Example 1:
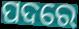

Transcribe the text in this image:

ପଦରେ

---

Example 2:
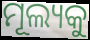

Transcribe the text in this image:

ମୂଲ୍ୟକୁ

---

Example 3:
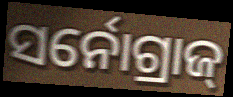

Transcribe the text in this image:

ସର୍ନୋଗ୍ରାଜ୍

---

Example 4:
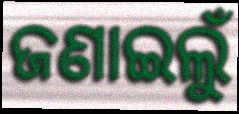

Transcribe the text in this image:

ଜଣାଇଲୁଁ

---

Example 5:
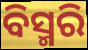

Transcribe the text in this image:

ବିସ୍ମରି